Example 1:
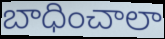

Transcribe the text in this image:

బాధించాలా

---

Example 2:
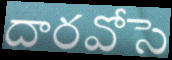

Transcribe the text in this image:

దారవోసె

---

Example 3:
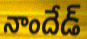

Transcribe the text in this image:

నాందేడ్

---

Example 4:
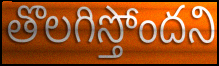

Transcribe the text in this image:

తొలగిస్తోందని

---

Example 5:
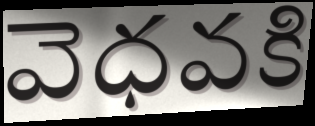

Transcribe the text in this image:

వెధవకి